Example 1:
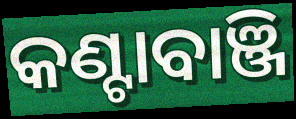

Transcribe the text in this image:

କଣ୍ଟାବାଞ୍ଜି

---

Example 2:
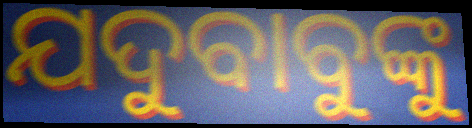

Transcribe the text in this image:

ଯଦୁବାବୁଙ୍କୁ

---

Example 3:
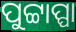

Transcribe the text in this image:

ପୁଟ୍ଟାପ୍ପା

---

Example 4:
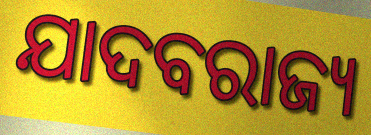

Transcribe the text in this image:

ଯାଦବରାଜ୍ୟ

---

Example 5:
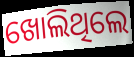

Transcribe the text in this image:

ଖୋଲିଥିଲେ